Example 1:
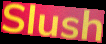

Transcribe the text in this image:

Slush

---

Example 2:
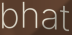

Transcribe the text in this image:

bhat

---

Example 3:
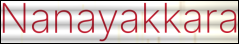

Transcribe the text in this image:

Nanayakkara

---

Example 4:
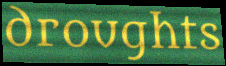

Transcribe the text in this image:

droughts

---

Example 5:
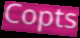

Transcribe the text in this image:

Copts